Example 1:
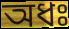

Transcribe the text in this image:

অধঃ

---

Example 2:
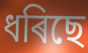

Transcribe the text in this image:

ধৰিছে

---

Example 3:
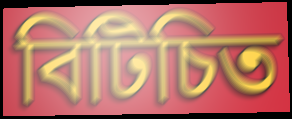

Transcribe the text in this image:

বিটিচিত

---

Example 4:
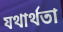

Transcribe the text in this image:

যথাৰ্থতা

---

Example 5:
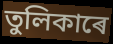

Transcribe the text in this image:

তুলিকাৰে